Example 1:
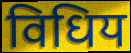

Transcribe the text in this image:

विधिय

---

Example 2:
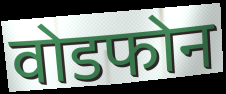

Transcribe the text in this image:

वोडफोन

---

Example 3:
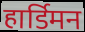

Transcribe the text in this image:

हार्डिमन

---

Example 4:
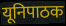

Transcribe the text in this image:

यूनिपाठक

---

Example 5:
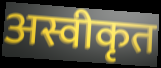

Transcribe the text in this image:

अस्‍वीकृत